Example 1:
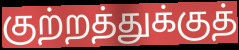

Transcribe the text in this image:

குற்றத்துக்குத்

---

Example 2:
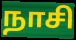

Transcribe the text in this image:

நாசி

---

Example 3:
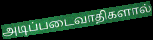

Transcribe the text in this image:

அடிப்படைவாதிகளால்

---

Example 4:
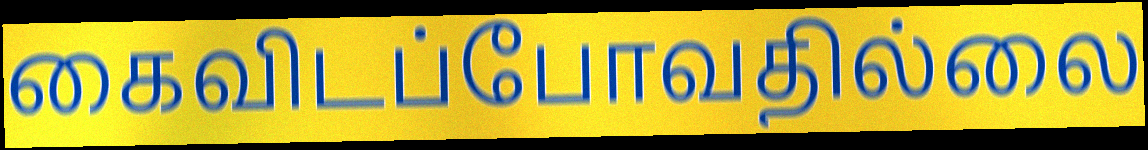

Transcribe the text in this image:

கைவிடப்போவதில்லை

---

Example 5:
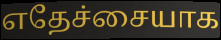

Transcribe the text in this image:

எதேச்சையாக